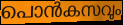
പൊൻകസവും